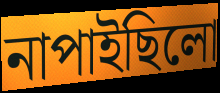
নাপাইছিলো